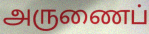
அருணைப்